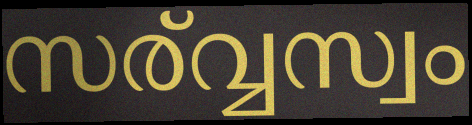
സര്വ്വസ്വം